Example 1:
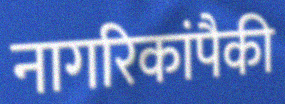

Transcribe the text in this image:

नागरिकांपैकी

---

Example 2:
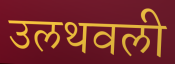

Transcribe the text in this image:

उलथवली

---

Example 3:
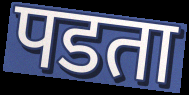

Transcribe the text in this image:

पडता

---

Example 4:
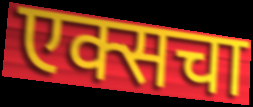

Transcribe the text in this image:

एक्सचा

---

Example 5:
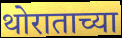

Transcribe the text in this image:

थोराताच्या